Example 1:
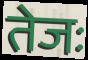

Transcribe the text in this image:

तेजः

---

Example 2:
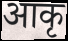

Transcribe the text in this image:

आकृ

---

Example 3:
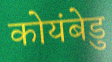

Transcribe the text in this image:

कोयंबेडु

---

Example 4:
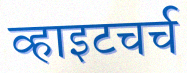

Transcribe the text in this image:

व्हाइटचर्च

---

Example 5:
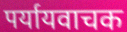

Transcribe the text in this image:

पर्यायवाचक